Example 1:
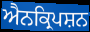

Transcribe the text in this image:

ਐਨਕ੍ਰਿਪਸ਼ਨ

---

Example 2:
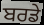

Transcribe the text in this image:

ਬਰਡੇ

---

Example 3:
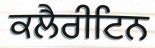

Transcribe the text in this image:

ਕਲੈਰੀਟਿਨ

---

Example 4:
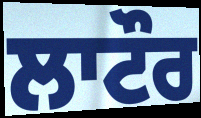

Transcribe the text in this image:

ਲਾਟੌਰ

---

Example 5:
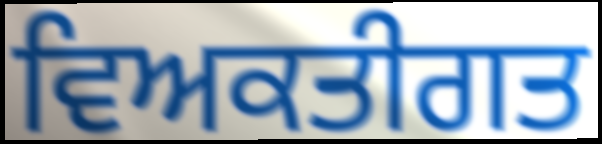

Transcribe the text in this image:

ਵਿਅਕਤੀਗਤ